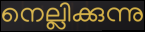
നെല്ലിക്കുന്നു